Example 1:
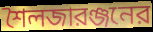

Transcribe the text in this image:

শৈলজারঞ্জনের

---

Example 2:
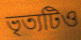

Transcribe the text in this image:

ভৃত্যটিও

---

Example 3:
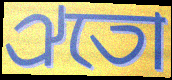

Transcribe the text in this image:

ঐতো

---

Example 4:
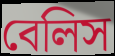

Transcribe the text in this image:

বেলিস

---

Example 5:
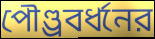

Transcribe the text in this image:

পৌণ্ড্রবর্ধনের